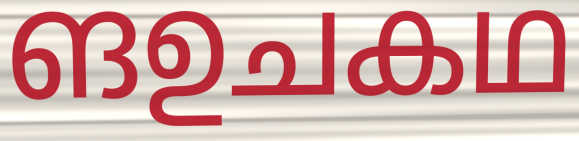
ങഉചകഥ